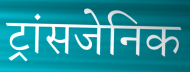
ट्रांसजेनिक